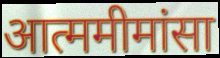
आत्ममीमांसा